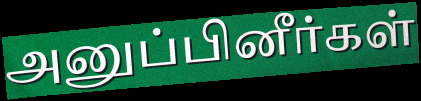
அனுப்பினீர்கள்